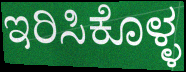
ಇರಿಸಿಕೊಳ್ಳ